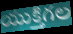
యుక్తిగల